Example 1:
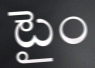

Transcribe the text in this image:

టైం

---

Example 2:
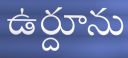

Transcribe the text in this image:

ఉర్దూను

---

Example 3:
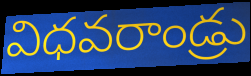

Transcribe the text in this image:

విధవరాండ్రు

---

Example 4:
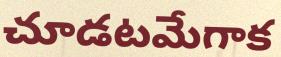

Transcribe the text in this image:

చూడటమేగాక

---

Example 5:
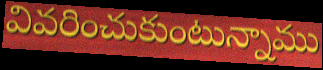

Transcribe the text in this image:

వివరించుకుంటున్నాము